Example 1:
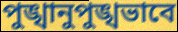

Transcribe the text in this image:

পুঙ্খানুপুঙ্খভাবে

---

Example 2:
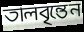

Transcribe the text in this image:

তালবৃন্তেন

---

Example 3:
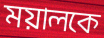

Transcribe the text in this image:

ময়ালকে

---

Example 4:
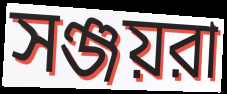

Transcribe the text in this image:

সঞ্জয়রা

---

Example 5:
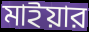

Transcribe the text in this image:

মাইয়ার